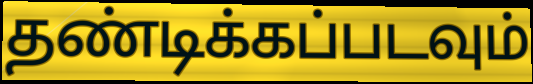
தண்டிக்கப்படவும்